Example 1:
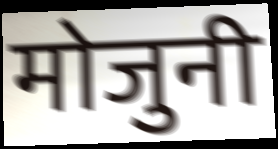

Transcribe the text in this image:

मोजुनी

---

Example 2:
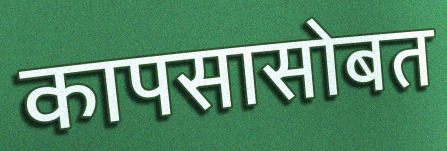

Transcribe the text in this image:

कापसासोबत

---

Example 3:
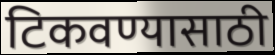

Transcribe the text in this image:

टिकवण्यासाठी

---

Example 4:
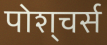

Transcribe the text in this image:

पोश्चर्स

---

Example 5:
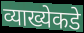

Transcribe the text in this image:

व्याख्येकडे